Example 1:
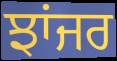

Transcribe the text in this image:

ਝਾਂਜਰ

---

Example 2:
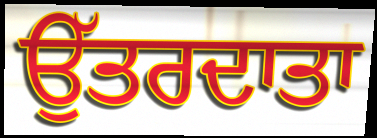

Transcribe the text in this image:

ਉੱਤਰਦਾਤਾ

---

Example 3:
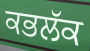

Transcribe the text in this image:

ਕਭਲੱਕ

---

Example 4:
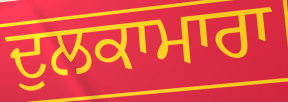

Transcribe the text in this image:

ਦੁਲਕਾਮਾਰਾ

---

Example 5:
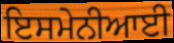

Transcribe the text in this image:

ਇਸਮੇਨੀਆਈ